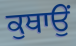
ਕੁਥਾਉਂ